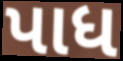
પાધ